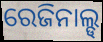
ରେଜିନାଲ୍ଡ୍